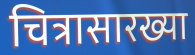
चित्रासारख्या